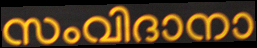
സംവിദാനാ